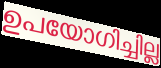
ഉപയോഗിച്ചില്ല